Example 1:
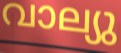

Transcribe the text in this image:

വാല്യു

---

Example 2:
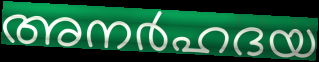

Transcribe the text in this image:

അനർഹദയ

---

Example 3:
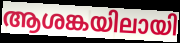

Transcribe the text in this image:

ആശങ്കയിലായി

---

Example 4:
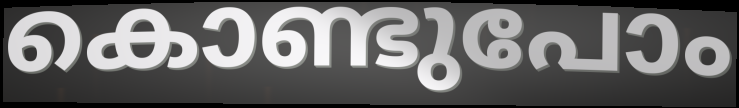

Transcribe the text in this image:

കൊണ്ടുപോം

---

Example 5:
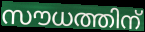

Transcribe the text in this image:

സൗധത്തിന്